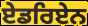
ਏਡਰਿਏਨ